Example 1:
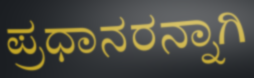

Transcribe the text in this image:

ಪ್ರಧಾನರನ್ನಾಗಿ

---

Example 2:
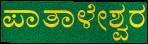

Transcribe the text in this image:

ಪಾತಾಳೇಶ್ವರ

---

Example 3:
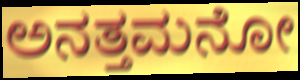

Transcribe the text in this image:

ಅನತ್ತಮನೋ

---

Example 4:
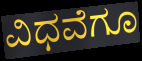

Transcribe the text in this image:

ವಿಧವೆಗೂ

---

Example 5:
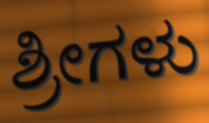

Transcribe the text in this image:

ಶ್ರೀಗಳು